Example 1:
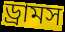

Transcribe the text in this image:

ড্রামস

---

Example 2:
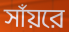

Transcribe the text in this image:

সাঁয়রে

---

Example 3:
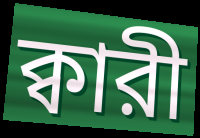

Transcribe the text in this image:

ক্বারী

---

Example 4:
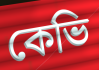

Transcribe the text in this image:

কেভি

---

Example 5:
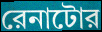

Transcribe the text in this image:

রেনাটোর